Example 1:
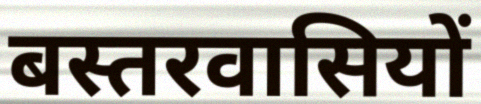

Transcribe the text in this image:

बस्तरवासियों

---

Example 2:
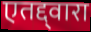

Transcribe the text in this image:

एतद्द्वारा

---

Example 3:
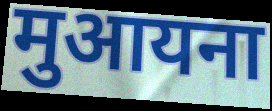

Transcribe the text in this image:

मुआयना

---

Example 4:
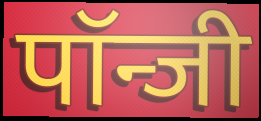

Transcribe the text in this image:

पॉन्जी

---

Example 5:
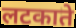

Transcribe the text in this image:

लटकाते